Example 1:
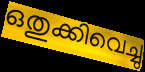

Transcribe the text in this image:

ഒതുക്കിവെച്ചു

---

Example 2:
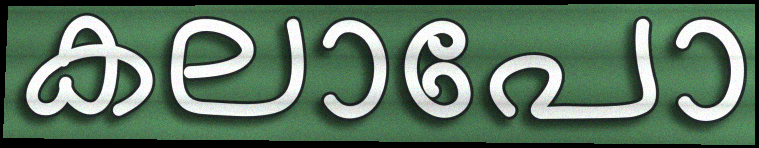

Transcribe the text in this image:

കലാപോ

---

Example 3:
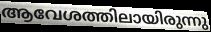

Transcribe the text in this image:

ആവേശത്തിലായിരുന്നു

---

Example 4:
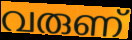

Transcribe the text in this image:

വരുണ്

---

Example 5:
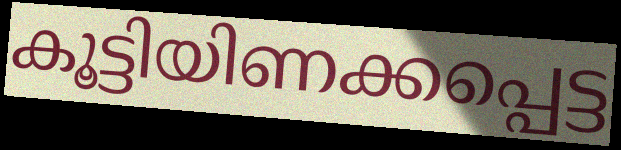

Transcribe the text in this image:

കൂട്ടിയിണക്കപ്പെട്ട